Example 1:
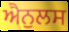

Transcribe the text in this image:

ਐਨੁਲਸ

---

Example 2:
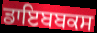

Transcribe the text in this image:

ਡਾਇਬਬਕਸ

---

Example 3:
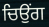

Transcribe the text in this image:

ਚਿਉਂਗ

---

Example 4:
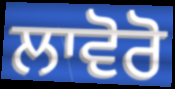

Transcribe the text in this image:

ਲਾਵੋਰੋ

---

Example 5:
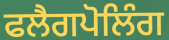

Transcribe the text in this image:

ਫਲੈਗਪੋਲਿੰਗ